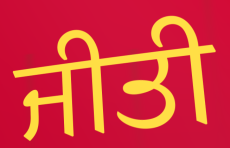
ਜੀਤੀ